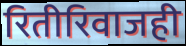
रितीरिवाजही